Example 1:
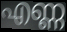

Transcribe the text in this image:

എണ്ണ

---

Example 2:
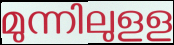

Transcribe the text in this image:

മുന്നിലുളള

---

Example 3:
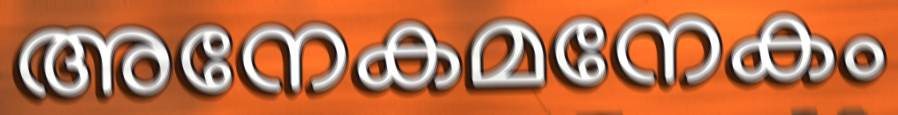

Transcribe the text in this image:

അനേകമനേകം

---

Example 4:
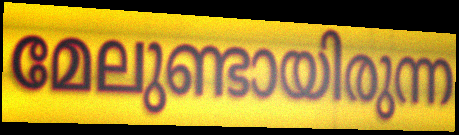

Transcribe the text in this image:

മേലുണ്ടായിരുന്ന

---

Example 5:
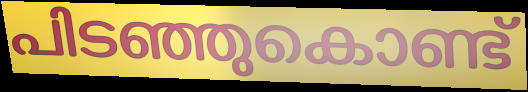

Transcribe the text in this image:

പിടഞ്ഞുകൊണ്ട്